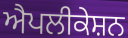
ਐਪਲੀਕੇਸ਼ਨ